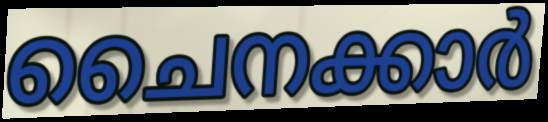
ചൈനക്കാർ